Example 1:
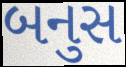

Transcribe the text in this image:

બનુસ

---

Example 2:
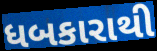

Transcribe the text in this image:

ધબકારાથી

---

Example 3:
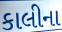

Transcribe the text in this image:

કાલીના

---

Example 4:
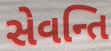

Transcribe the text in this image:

સેવન્તિ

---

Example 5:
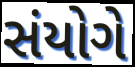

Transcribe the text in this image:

સંયોગે